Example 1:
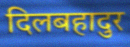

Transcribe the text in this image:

दिलबहादुर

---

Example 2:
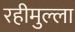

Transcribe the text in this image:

रहीमुल्ला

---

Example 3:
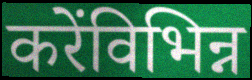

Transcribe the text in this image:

करेंविभिन्न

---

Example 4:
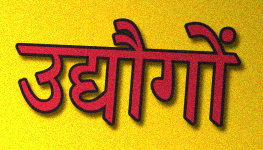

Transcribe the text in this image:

उद्यौगों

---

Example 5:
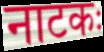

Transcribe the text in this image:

नाटकः